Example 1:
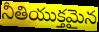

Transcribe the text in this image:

నీతియుక్తమైన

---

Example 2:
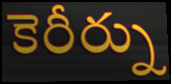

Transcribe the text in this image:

కెరీర్ను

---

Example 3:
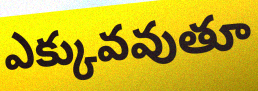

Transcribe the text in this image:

ఎక్కువవుతూ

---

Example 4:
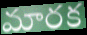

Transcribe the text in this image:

మారక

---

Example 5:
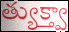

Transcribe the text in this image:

త్యుక్త్వా